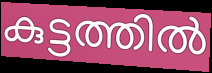
കുട്ടത്തിൽ